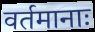
वर्तमानाः